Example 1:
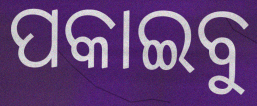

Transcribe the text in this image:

ପକାଇବୁ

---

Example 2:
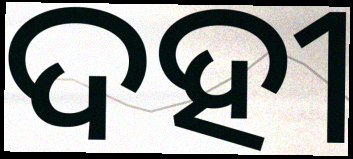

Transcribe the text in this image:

ଦହୀ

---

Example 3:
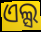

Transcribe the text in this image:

ଏଲ୍ସ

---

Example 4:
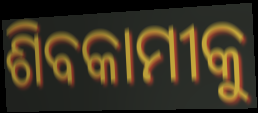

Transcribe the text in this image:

ଶିବକାମୀକୁ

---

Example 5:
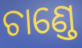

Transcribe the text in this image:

ଚାଣ୍ଡେ